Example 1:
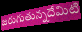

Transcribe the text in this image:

జరుగుతున్నదేమిటి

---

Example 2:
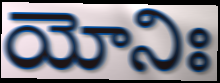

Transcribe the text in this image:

యోనిః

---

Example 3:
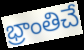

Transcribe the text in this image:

భ్రాంతిచే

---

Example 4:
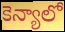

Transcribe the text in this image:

కెన్యాలో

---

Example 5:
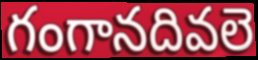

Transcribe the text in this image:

గంగానదివలె